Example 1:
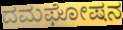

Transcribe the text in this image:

ದಮಘೋಷನ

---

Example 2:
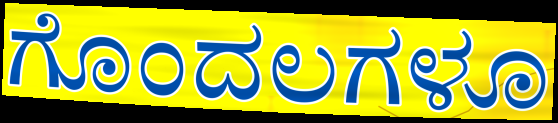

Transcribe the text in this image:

ಗೊಂದಲಗಳೂ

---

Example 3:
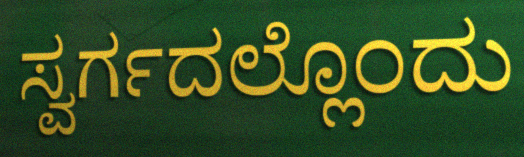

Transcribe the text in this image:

ಸ್ವರ್ಗದಲ್ಲೊಂದು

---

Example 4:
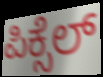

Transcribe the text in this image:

ಪಿಕ್ಸೆಲ್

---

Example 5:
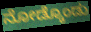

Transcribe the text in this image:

ನೋಡ್ಕೊಂಡು